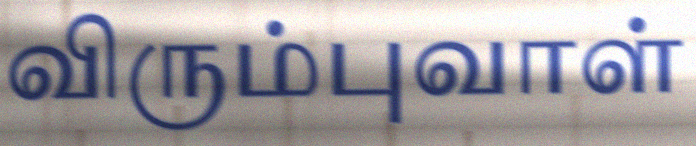
விரும்புவாள்